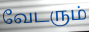
வேடரும்